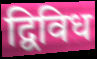
द्विविध